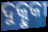
ଦୁକ୍ଦୁକୀ